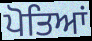
ਪੋਤਿਆਂ